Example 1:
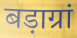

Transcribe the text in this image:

बड़ाग्रां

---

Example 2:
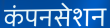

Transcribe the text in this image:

कंपनसेशन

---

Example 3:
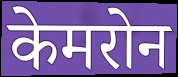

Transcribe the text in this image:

केमरोन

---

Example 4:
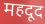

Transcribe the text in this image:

महदूद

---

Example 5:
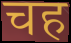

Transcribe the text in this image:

चह